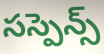
సస్పెన్స్